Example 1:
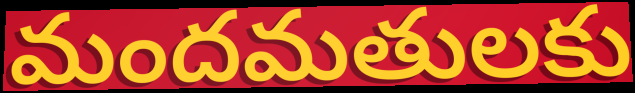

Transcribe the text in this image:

మందమతులకు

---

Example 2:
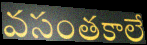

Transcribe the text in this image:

వసంతకాలే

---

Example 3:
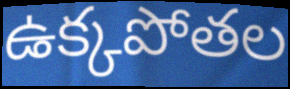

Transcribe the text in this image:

ఉక్కపోతల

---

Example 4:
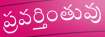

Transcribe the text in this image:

ప్రవర్తింతువు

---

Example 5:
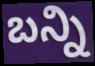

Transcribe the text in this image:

బన్ని